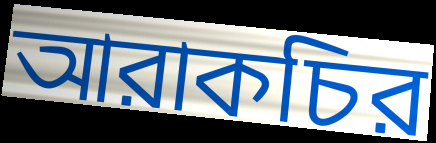
আরাকচির